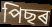
পিছৰ